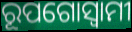
ରୂପଗୋସ୍ୱାମୀ